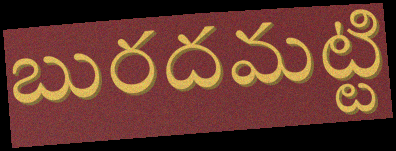
బురదమట్టి